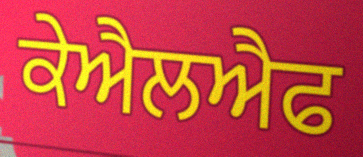
ਕੇਐਲਐਫ